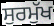
ਸੁਰਮੁੱਖ